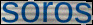
soros